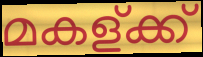
മകള്ക്ക്